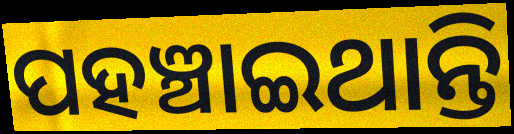
ପହଞ୍ଚାଇଥାନ୍ତି